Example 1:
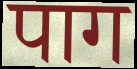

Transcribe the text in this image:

पाग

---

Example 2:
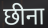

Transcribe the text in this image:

छीना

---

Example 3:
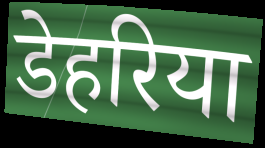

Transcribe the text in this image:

डेहरिया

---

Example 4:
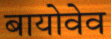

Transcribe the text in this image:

बायोवेव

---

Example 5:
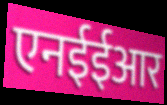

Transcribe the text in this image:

एनईईआर